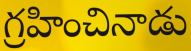
గ్రహించినాడు